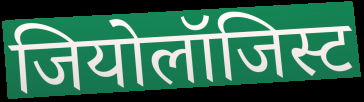
जियोलॉजिस्ट